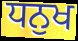
ਧਨੁਖ